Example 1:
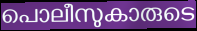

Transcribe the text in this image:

പൊലീസുകാരുടെ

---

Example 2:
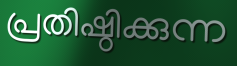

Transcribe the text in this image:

പ്രതിഷ്ഠിക്കുന്ന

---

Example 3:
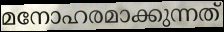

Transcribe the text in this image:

മനോഹരമാക്കുന്നത്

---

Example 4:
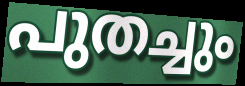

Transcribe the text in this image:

പുതച്ചും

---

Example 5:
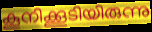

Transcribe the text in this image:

കൂനിക്കൂടിയിരുന്നു